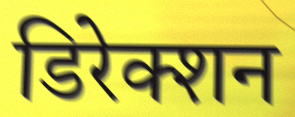
डिरेक्शन